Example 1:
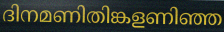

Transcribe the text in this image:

ദിനമണിതിങ്കളണിഞ്ഞ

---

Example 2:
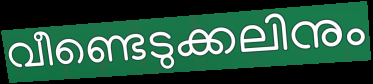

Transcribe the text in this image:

വീണ്ടെടുക്കലിനും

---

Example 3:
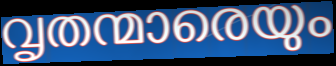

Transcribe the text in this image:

വൃതന്മാരെയും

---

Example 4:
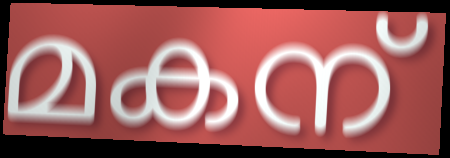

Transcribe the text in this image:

മകന്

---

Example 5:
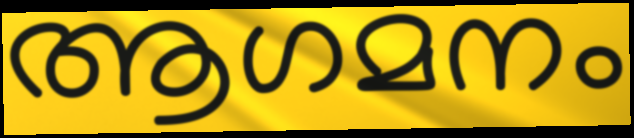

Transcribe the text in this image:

ആഗമനം